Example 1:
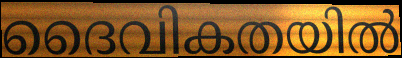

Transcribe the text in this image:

ദൈവികതയിൽ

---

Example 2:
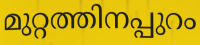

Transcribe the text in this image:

മുറ്റത്തിനപ്പുറം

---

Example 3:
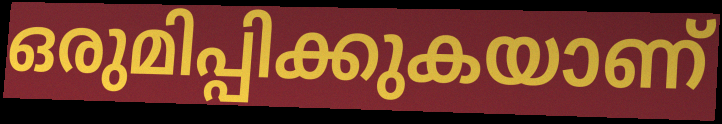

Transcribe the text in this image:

ഒരുമിപ്പിക്കുകയാണ്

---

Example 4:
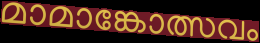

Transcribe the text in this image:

മാമാങ്കോത്സവം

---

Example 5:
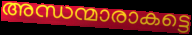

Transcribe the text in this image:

അന്ധന്മാരാകട്ടെ